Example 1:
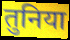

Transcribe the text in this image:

तुनिया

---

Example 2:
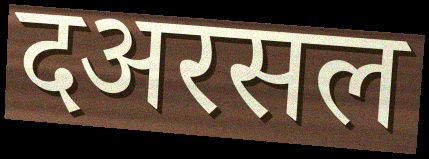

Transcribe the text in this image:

दअरसल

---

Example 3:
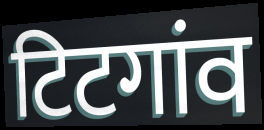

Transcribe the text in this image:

टिटगांव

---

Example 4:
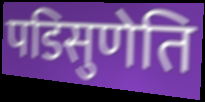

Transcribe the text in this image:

पडिसुणेति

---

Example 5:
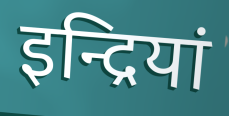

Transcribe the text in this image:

इन्द्रियां